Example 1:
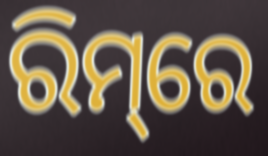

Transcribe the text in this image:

ରିମ୍‌ରେ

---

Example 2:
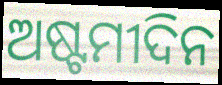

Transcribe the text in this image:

ଅଷ୍ଟମୀଦିନ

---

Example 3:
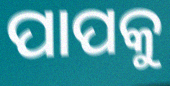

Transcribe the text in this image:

ପାପକୁ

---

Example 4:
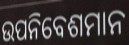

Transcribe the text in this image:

ଉପନିବେଶମାନ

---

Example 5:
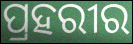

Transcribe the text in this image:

ପ୍ରହରୀର